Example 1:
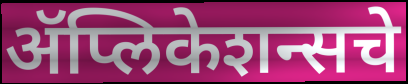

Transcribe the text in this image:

ॲप्लिकेशन्सचे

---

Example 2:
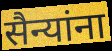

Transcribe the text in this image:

सैन्यांना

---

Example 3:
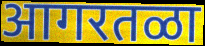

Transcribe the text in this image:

आगरतळा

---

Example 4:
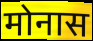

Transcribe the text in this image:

मोनास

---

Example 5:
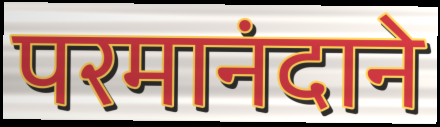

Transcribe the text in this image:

परमानंदाने